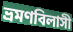
ভ্রমণবিলাসী